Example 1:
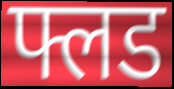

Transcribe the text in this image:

फ्लड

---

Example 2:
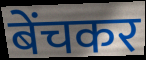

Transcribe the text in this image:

बेंचकर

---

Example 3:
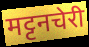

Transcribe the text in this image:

मट्टनचेरी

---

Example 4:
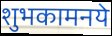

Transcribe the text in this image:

शुभकामनये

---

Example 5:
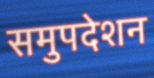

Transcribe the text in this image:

समुपदेशन